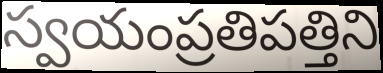
స్వయంప్రతిపత్తిని